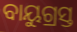
ବାୟୁଗ୍ରସ୍ତ